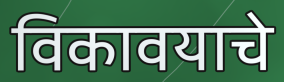
विकावयाचे